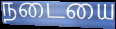
நடையை